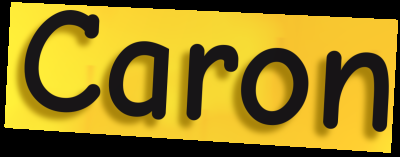
Caron